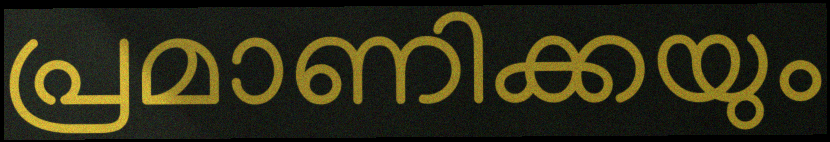
പ്രമാണിക്കയും